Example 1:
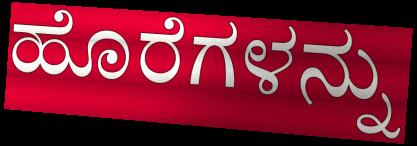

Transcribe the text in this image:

ಹೊರೆಗಳನ್ನು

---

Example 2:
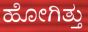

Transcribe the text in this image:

ಹೋಗಿತ್ತು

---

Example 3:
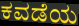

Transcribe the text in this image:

ಕವಡೆಯ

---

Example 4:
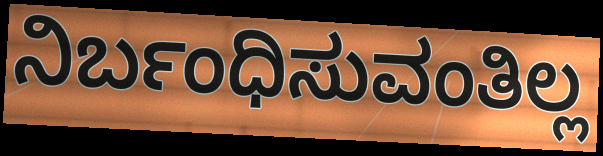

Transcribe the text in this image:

ನಿರ್ಬಂಧಿಸುವಂತಿಲ್ಲ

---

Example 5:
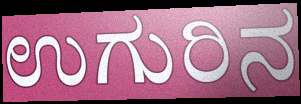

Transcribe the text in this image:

ಉಗುರಿನ